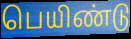
பெயிண்டு